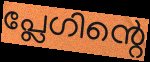
പ്ലേഗിന്റെ